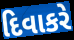
દિવાકરે